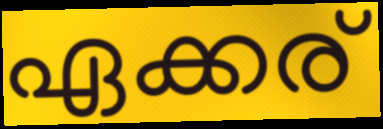
ഏക്കര്